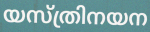
യസ്ത്രിനയന